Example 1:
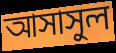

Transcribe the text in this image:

আসাসুল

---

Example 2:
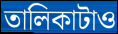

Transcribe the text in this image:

তালিকাটাও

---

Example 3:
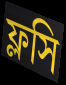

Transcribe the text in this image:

ফ্লসি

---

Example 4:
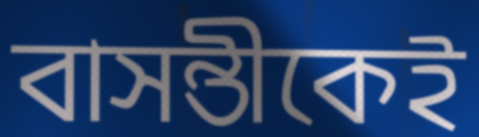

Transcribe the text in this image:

বাসন্তীকেই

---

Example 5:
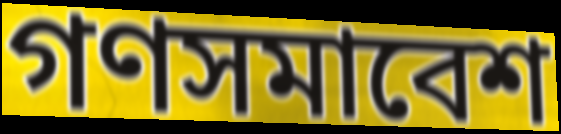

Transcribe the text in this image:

গণসমাবেশ